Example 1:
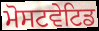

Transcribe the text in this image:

ਮੋਸਟਵੇਟਿਡ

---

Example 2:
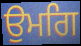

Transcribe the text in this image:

ਉਮਗਿ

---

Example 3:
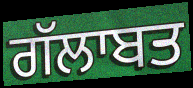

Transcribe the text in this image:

ਗੱਲਾਬਤ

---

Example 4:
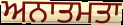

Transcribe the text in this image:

ਅਨਾਤਮਤਾ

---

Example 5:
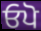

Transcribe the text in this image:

ਓਪੋ